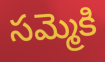
సమ్మెకి